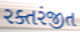
રક્તરંજીત